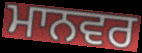
ਮਾਨਵਰ